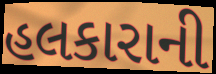
હલકારાની